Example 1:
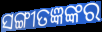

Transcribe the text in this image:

ସଙ୍ଗୀତଜ୍ଞଙ୍କର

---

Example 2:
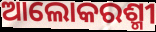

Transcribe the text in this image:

ଆଲୋକରଶ୍ମୀ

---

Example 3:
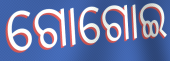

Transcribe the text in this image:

ଗୋଗୋଇ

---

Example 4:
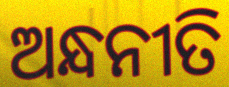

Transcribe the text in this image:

ଅନ୍ଧନୀତି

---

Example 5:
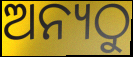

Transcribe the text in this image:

ଅନ୍ୟଠୁ